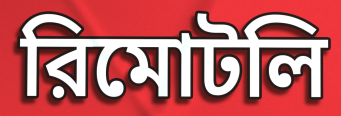
রিমোটলি